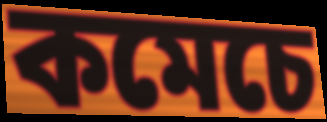
কমেচে